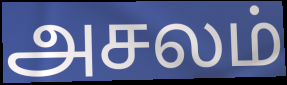
அசலம்